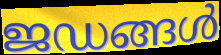
ജഡങ്ങൾ